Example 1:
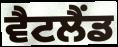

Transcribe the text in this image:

ਵੈਟਲੈਂਡ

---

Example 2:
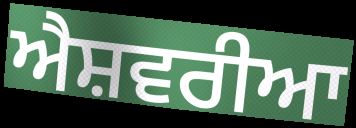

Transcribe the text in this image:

ਐਸ਼ਵਰੀਆ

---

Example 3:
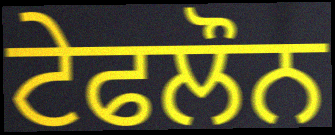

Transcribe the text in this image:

ਟੇਫਲੌਨ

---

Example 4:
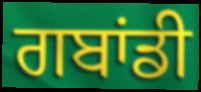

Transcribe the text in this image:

ਗਬਾਂਡੀ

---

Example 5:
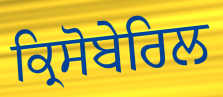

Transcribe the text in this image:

ਕ੍ਰਿਸੋਬੇਰਿਲ